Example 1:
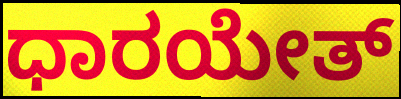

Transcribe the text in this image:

ಧಾರಯೇತ್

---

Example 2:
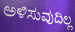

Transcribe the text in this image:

ಅಳಿಸುವುದಿಲ್ಲ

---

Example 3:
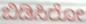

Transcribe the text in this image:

ಬಿಡಿಸಿರೋ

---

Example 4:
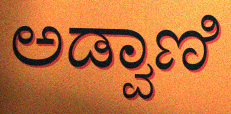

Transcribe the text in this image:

ಅಡ್ವಾಣಿ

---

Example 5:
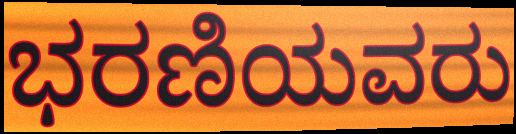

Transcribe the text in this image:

ಭರಣಿಯವರು